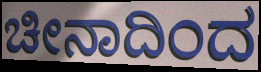
ಚೀನಾದಿಂದ